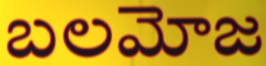
బలమోజ